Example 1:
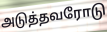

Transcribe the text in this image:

அடுத்தவரோடு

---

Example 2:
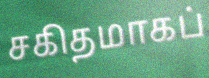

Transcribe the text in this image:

சகிதமாகப்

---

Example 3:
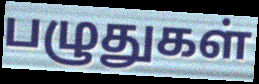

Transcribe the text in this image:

பழுதுகள்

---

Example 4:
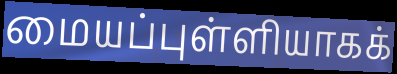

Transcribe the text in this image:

மையப்புள்ளியாகக்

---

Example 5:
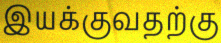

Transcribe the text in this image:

இயக்குவதற்கு